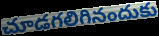
చూడగలిగినందుకు